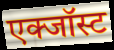
एक्जॉस्ट